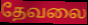
தேவலை